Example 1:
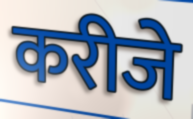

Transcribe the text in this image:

करीजे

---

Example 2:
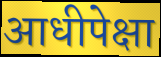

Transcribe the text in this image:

आधीपेक्षा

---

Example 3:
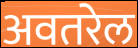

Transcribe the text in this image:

अवतरेल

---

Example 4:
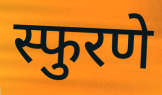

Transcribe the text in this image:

स्फुरणे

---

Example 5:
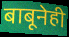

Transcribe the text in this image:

बाबूनेही